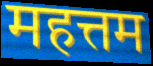
महत्तम